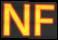
NF